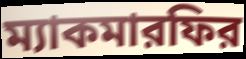
ম্যাকমারফির